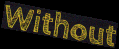
Without